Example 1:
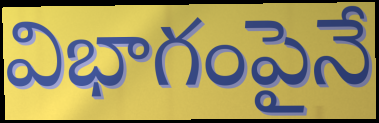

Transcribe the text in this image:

విభాగంపైనే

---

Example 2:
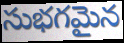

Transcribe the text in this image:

సుభగమైన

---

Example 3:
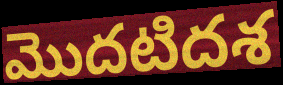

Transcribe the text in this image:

మొదటిదశ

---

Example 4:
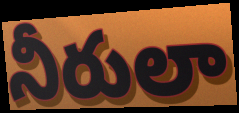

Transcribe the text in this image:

నీరులా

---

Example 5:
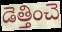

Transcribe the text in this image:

డెత్తించె